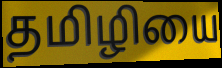
தமிழியை